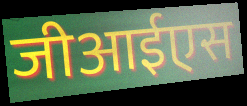
जीआईएस